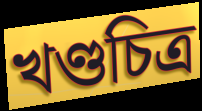
খণ্ডচিত্র